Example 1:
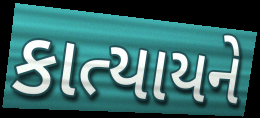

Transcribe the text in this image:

કાત્યાયને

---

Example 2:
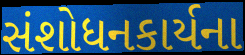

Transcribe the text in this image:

સંશોધનકાર્યના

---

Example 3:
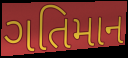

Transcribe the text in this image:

ગતિમાન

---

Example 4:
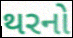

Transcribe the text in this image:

થરનો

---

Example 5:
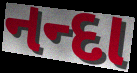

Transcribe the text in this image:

નન્દા